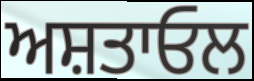
ਅਸ਼ਤਾਓਲ